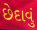
છેદાવું